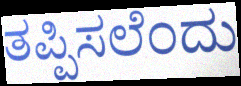
ತಪ್ಪಿಸಲೆಂದು